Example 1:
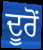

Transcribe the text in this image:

ਦੂਰੋਂ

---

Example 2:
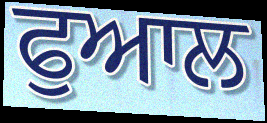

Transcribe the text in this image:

ਫੁਆਲ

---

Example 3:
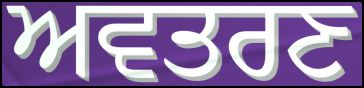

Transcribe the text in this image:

ਅਵਤਰਣ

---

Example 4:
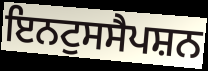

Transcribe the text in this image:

ਇਨਟੁਸਸੈਪਸ਼ਨ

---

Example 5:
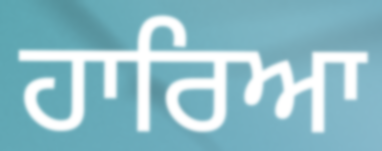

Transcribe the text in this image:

ਹਾਰਿਆ